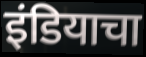
इंडियाचा